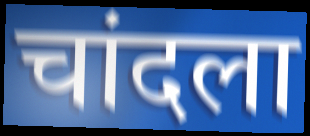
चांदला